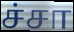
ச்சா